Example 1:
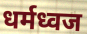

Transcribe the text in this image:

धर्मध्वज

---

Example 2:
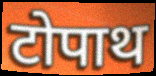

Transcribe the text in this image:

टोपाथ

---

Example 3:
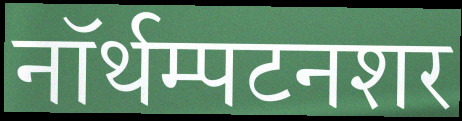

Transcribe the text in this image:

नॉर्थम्पटनशर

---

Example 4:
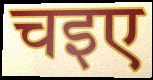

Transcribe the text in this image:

चइए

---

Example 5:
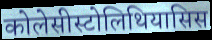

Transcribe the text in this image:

कोलेसीस्टोलिथियासिस